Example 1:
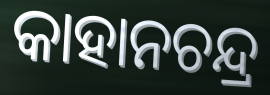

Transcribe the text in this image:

କାହାନଚନ୍ଦ୍ର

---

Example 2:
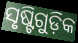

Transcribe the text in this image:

ସୃଷ୍ଟିଗୁଡ଼ିକ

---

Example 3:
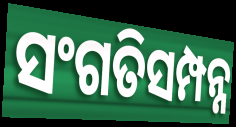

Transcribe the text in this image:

ସଂଗତିସମ୍ପନ୍ନ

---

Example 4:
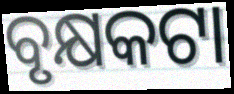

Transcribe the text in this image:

ବୃକ୍ଷକଟା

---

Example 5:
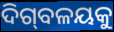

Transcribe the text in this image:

ଦିଗ୍‌ବଳୟକୁ